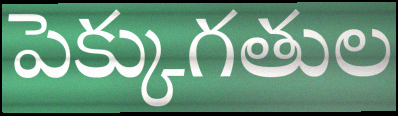
పెక్కుగతుల